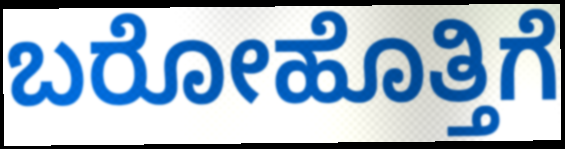
ಬರೋಹೊತ್ತಿಗೆ